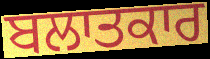
ਬਲਾਤਕਾਰ